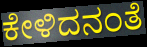
ಕೇಳಿದನಂತೆ